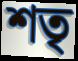
শতৃ